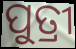
ପୁତ୍ରୀ